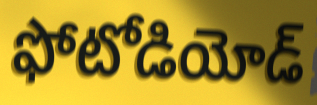
ఫోటోడియోడ్